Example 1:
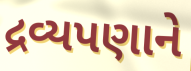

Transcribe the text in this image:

દ્રવ્યપણાને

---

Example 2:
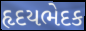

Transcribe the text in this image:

હૃદયભેદક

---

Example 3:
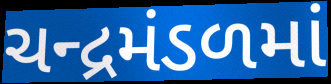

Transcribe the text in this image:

ચન્દ્રમંડળમાં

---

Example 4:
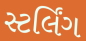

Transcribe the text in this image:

સ્ટર્લિંગ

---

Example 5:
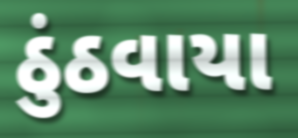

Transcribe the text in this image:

ઠુંઠવાયા